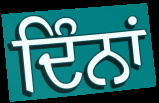
ਦਿੰਨਾਂ